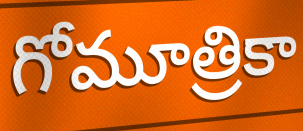
గోమూత్రికా